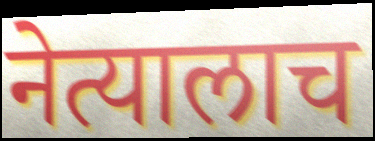
नेत्यालाच